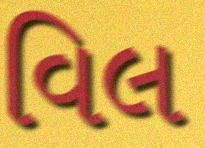
વિલ